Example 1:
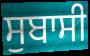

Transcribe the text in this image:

ਸੁਬਾਸੀ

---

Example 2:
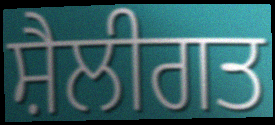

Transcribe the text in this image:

ਸ਼ੈਲੀਗਤ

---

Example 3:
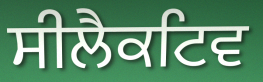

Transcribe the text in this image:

ਸੀਲੈਕਟਿਵ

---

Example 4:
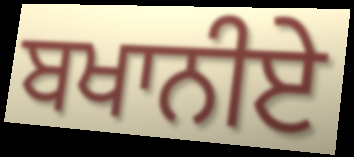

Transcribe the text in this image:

ਬਖਾਨੀਏ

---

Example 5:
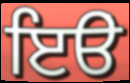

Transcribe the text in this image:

ਇੳਂ